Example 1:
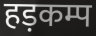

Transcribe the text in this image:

हड़कम्‍प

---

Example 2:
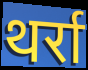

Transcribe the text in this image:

थर्रा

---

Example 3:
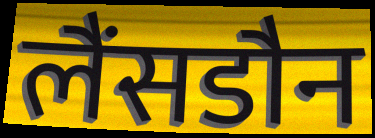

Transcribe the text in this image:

लैंसडौन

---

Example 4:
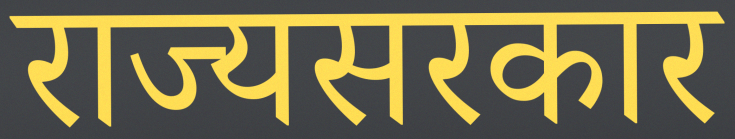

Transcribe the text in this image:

राज्यसरकार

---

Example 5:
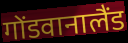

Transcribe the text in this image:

गोंडवानालैंड